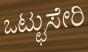
ಒಟ್ಟುಸೇರಿ